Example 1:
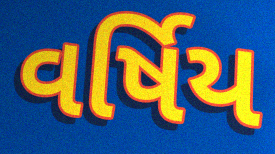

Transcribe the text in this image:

વર્ષિય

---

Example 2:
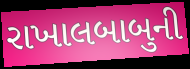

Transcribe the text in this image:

રાખાલબાબુની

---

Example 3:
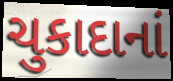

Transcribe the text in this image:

ચુકાદાનાં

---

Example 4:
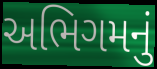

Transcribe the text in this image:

અભિગમનું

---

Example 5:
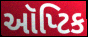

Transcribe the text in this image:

ઑપ્ટિક